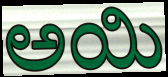
ಅಯಿ